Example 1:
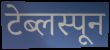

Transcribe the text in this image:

टेब्लस्पून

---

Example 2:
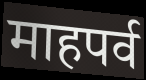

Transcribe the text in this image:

माहपर्व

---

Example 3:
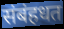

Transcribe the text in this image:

संबंहधत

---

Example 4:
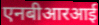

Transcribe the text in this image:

एनबीआरआई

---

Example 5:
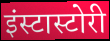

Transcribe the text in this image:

इंस्टास्टोरी